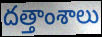
దత్తాంశాలు